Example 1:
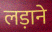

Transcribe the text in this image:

लड़ाने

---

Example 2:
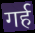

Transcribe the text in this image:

गर्ह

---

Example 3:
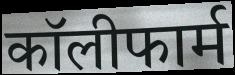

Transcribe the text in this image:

कॉलीफार्म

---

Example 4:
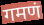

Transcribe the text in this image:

गमणं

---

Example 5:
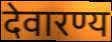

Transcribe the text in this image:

देवारण्य